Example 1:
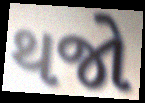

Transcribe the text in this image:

થજો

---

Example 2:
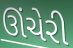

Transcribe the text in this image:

ઊંચેરી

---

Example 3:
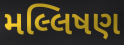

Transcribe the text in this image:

મલ્લિષણ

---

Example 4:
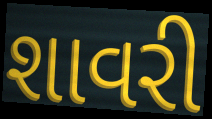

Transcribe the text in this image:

શાવરી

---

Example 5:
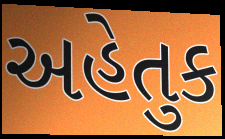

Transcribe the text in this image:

અહેતુક